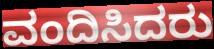
ವಂದಿಸಿದರು